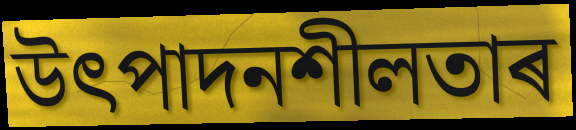
উৎপাদনশীলতাৰ